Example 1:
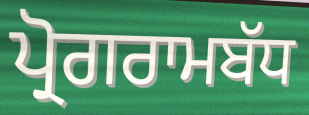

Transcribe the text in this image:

ਪ੍ਰੋਗਰਾਮਬੱਧ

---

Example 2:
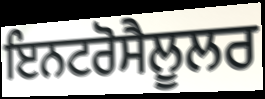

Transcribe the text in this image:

ਇਨਟਰੋਸੈਲੂਲਰ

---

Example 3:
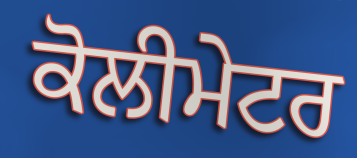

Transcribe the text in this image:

ਕੋਲੀਮੇਟਰ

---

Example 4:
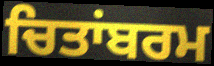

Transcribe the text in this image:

ਚਿਤਾਂਬਰਮ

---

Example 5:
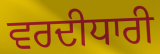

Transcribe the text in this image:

ਵਰਦੀਧਾਰੀ